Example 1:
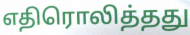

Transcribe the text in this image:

எதிரொலித்தது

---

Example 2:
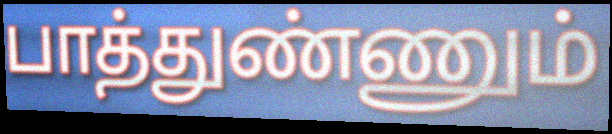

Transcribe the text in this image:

பாத்துண்ணும்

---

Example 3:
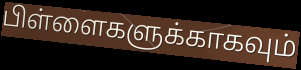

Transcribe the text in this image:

பிள்ளைகளுக்காகவும்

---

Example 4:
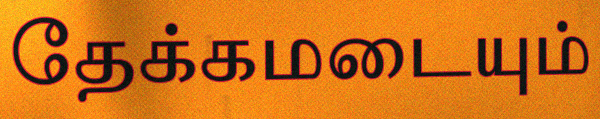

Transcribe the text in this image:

தேக்கமடையும்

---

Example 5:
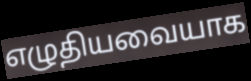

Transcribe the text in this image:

எழுதியவையாக